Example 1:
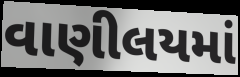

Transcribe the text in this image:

વાણીલયમાં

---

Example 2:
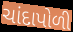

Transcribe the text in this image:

ચાંદાપોળી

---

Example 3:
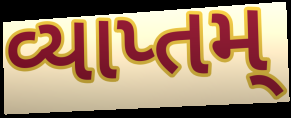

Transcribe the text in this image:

વ્યાપ્તમ્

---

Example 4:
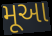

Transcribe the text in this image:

મૂઆ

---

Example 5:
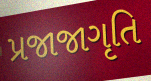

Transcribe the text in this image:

પ્રજાજાગૃતિ